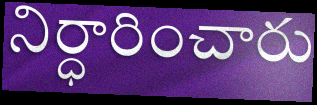
నిర్ధారించారు